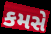
કમસે